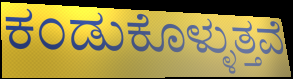
ಕಂಡುಕೊಳ್ಳುತ್ತವೆ